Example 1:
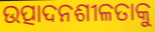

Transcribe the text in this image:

ଉତ୍ପାଦନଶୀଳତାକୁ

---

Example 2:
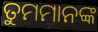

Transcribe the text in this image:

ତୁମମାନଙ୍କ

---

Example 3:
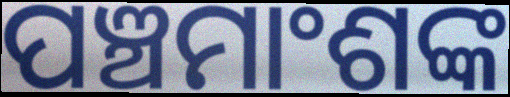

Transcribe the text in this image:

ପଞ୍ଚମାଂଶଙ୍କ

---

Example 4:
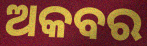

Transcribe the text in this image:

ଅକବର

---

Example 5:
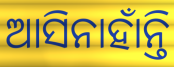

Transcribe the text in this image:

ଆସିନାହାଁନ୍ତି